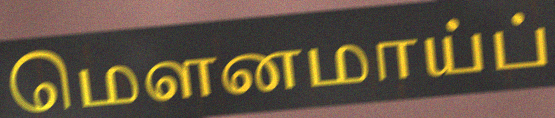
மௌனமாய்ப்